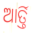
ଆର୍ତ୍ତି